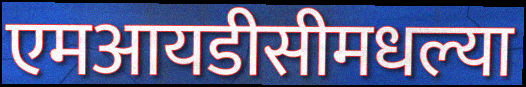
एमआयडीसीमधल्या